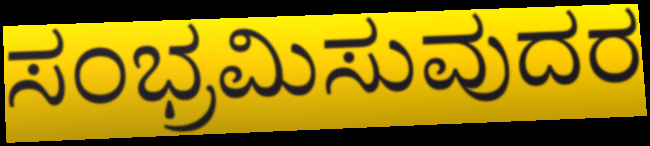
ಸಂಭ್ರಮಿಸುವುದರ